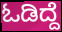
ಓಡಿದ್ದೆ